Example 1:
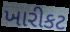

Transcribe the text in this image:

ખારીકટ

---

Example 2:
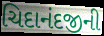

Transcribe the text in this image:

ચિદાનંદજીની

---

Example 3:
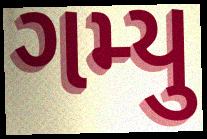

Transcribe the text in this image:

ગમ્યુ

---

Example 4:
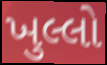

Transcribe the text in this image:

ખુલ્લો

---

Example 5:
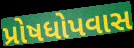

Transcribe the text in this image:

પ્રોષધોપવાસ